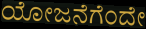
ಯೋಜನೆಗೆಂದೇ